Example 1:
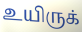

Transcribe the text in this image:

உயிருக்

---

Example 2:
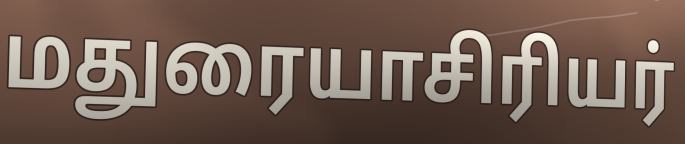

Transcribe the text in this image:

மதுரையாசிரியர்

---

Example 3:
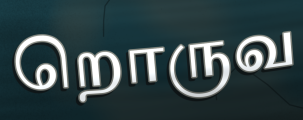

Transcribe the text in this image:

றொருவ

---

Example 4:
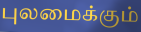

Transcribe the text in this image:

புலமைக்கும்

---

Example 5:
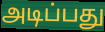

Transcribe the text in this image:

அடிப்பது